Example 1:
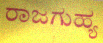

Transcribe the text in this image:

ರಾಜಗುಹ್ಯ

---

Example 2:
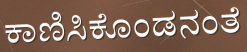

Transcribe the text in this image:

ಕಾಣಿಸಿಕೊಂಡನಂತೆ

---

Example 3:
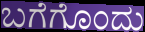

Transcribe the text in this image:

ಬಗೆಗೊಂದು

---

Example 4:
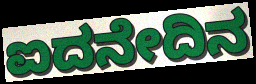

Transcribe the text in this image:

ಐದನೇದಿನ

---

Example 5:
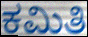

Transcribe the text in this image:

ಕಮಿತಿ